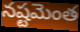
నష్టమెంత